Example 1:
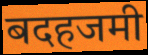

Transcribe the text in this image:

बदहजमी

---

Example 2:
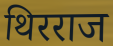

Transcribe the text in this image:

थिरराज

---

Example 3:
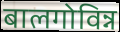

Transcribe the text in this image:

बालगोविन्न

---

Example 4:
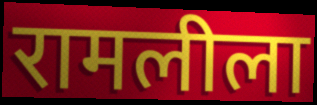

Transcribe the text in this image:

रामलीला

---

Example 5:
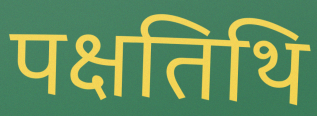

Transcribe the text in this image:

पक्षतिथि